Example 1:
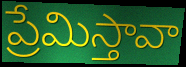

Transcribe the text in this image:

ప్రేమిస్తావా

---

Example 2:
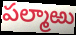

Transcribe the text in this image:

పల్మాఱు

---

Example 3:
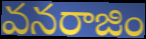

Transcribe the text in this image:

వనరాజిం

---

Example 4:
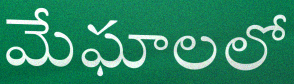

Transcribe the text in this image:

మేఘాలలో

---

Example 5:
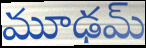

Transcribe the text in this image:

మూఢమ్